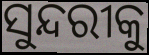
ସୁନ୍ଦରୀକୁ